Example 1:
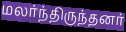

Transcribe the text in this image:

மலர்ந்திருந்தனர்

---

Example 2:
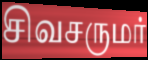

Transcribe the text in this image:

சிவசருமர்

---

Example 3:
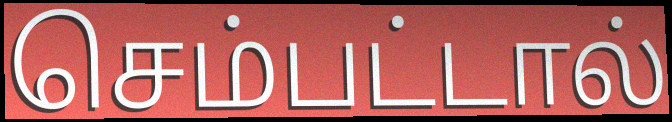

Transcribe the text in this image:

செம்பட்டால்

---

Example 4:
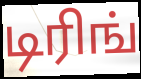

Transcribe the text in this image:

டிரிங்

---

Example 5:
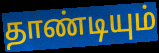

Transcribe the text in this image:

தாண்டியும்